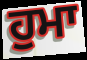
ਹੁਮਾ